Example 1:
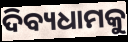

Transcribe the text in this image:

ଦିବ୍ୟଧାମକୁ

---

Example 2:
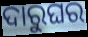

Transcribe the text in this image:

ଦାରୁଘର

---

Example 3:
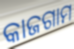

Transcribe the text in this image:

କାଜଗାମ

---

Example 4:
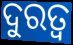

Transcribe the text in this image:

ଦୁରତ୍ଵ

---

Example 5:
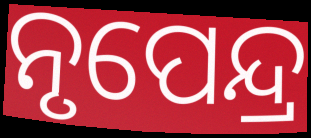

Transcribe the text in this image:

ନୃପେନ୍ଦ୍ର